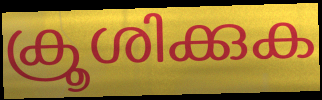
ക്രൂശിക്കുക